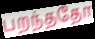
பறந்ததோ